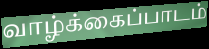
வாழ்க்கைப்பாடம்